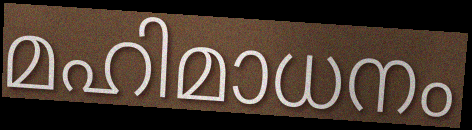
മഹിമാധനം